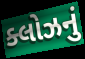
ક્લોઝનું